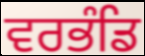
ਵਰਭੰਡਿ